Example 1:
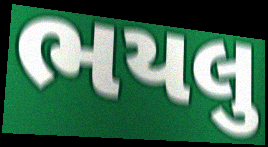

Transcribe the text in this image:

ભયલુ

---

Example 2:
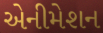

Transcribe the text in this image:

એનીમેશન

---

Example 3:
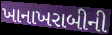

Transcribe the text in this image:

ખાનાખરાબીની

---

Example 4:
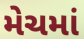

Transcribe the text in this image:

મેચમાં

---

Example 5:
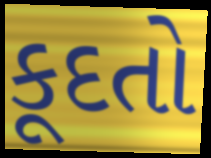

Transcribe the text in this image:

કૂદતો